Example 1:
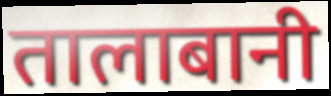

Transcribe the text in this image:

तालाबानी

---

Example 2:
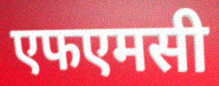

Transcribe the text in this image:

एफएमसी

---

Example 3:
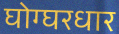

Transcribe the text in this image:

घोग्घरधार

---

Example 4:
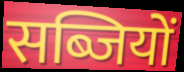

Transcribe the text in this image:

सब्जियों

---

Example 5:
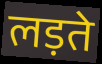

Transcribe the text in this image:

लड़ते